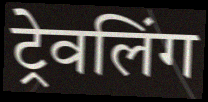
ट्रेवलिंग